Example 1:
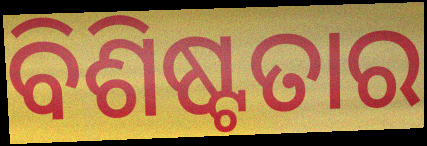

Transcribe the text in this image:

ବିଶିଷ୍ଟତାର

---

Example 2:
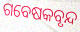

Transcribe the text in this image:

ଗବେଷକବୃନ୍ଦ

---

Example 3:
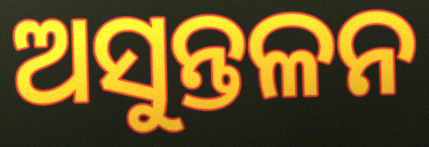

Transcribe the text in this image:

ଅସୁନ୍ତଳନ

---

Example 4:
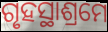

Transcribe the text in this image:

ଗୃହସ୍ଥାଶ୍ରମେ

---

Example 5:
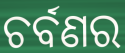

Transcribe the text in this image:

ଚର୍ବଣର